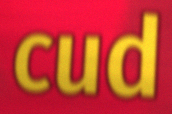
cud